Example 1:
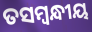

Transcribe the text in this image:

ତସମ୍ବନ୍ଧୀୟ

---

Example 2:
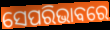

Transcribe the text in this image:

ସେପରିଭାବରେ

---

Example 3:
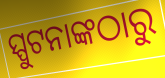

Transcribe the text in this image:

ସ୍ପୁଟନାଙ୍କଠାରୁ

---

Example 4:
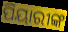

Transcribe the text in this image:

ପିୟାରୀଙ୍କ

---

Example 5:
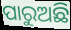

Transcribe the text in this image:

ପାରୁଅଛି